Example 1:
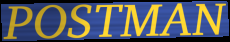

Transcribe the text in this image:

POSTMAN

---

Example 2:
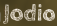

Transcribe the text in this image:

Jodio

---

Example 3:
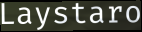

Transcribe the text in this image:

Laystaro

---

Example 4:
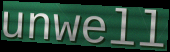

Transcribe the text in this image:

unwell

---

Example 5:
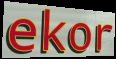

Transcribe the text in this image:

ekor